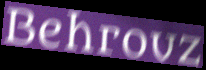
Behrouz